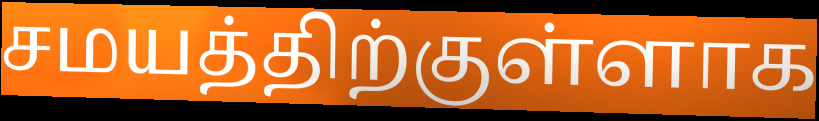
சமயத்திற்குள்ளாக